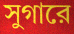
সুগারে